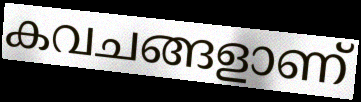
കവചങ്ങളാണ്